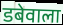
डबेवाला